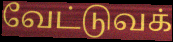
வேட்டுவக்